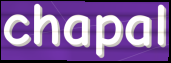
chapal